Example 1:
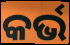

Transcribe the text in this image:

କର୍ଭ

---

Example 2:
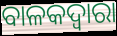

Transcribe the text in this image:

ବାଳକଦ୍ୱାରା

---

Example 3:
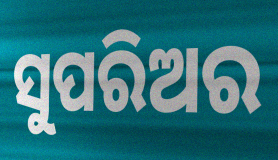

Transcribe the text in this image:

ସୁପରିଅର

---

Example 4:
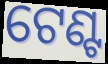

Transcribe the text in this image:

ଟେଣ୍ଟ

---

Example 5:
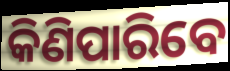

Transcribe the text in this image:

କିଣିପାରିବେ